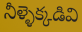
నీళ్ళెక్కడివి